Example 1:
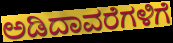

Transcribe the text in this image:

ಅಡಿದಾವರೆಗಳಿಗೆ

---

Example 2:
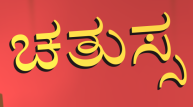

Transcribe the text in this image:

ಚತುಸ್ಸ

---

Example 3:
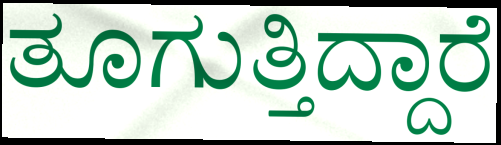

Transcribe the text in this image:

ತೂಗುತ್ತಿದ್ದಾರೆ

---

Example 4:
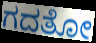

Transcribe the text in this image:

ಗದತೋ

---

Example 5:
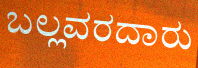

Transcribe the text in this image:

ಬಲ್ಲವರದಾರು